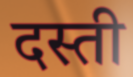
दस्ती